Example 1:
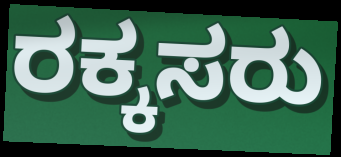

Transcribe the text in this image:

ರಕ್ಕಸರು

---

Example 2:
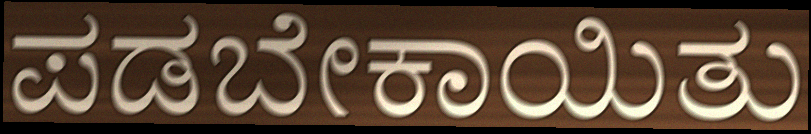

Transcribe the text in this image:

ಪಡಬೇಕಾಯಿತು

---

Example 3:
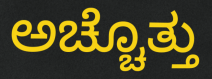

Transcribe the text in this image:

ಅಚ್ಚೊತ್ತು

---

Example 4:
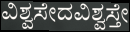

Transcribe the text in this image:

ವಿಶ್ವಸೇದವಿಶ್ವಸ್ತೇ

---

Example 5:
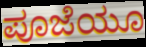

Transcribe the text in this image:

ಪೂಜೆಯೂ